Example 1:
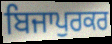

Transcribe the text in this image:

ਬਿਜਾਪੁਰਕਰ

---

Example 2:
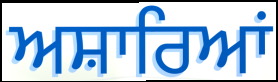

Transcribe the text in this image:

ਅਸ਼ਾਰਿਆਂ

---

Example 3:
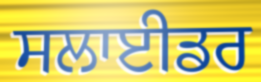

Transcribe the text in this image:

ਸਲਾਈਡਰ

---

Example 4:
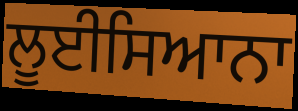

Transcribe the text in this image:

ਲੂਈਸਿਆਨਾ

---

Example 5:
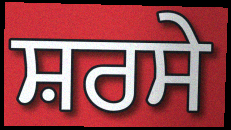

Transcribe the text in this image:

ਸ਼ਰਸੇ